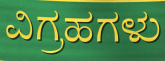
ವಿಗ್ರಹಗಳು